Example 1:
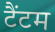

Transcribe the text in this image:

टैंटम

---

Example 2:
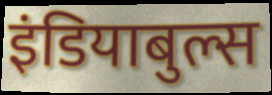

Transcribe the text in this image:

इंडियाबुल्‍स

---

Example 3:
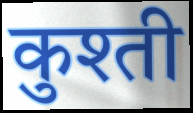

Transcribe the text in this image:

कुश्ती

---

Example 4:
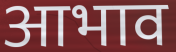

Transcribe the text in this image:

आभाव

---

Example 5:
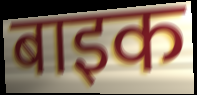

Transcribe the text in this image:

बाइक